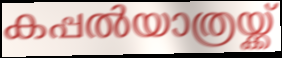
കപ്പൽയാത്രയ്ക്ക്